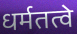
धर्मतत्वे